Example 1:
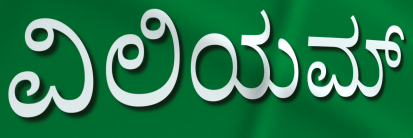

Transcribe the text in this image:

ವಿಲಿಯಮ್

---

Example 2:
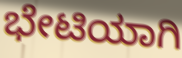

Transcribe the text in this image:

ಭೇಟಿಯಾಗಿ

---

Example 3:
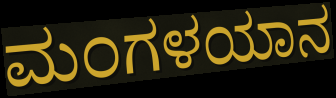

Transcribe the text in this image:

ಮಂಗಳಯಾನ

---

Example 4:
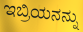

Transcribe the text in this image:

ಇಬ್ರಿಯನನ್ನು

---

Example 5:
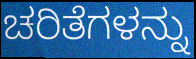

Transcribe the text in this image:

ಚರಿತೆಗಳನ್ನು